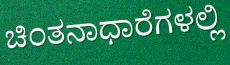
ಚಿಂತನಾಧಾರೆಗಳಲ್ಲಿ